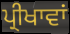
ਪ੍ਰੀਖਾਵਾਂ